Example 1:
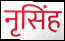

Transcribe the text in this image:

नृसिंह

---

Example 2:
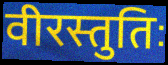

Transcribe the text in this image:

वीरस्तुतिः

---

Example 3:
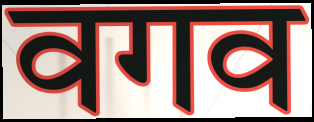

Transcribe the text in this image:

वगव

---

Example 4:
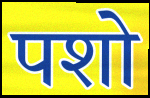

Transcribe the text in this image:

पशो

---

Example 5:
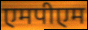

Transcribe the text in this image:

एमपीएम